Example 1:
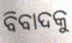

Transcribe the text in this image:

ବିବାଦକୁ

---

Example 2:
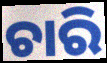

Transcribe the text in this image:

ଚାରି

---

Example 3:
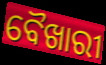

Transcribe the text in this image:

ବୈଖାରୀ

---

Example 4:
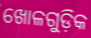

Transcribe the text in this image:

ଖୋଳଗୁଡ଼ିକ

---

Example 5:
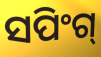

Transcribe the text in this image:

ସପିଂଗ୍